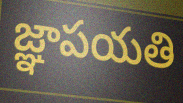
జ్ఞాపయతి